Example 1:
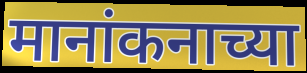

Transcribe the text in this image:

मानांकनाच्या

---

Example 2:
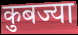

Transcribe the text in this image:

कुबज्या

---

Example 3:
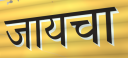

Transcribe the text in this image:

जायचा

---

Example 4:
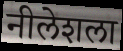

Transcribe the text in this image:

नीलेशला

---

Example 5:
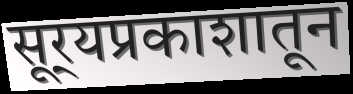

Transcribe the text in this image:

सूर्यप्रकाशातून